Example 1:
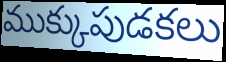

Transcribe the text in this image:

ముక్కుపుడకలు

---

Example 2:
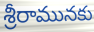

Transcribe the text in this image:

శ్రీరామునకు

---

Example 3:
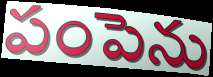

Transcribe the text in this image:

పంపెను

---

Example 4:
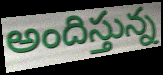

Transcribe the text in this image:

అందిస్తున్న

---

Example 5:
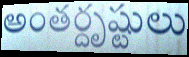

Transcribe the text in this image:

అంతర్దృష్టులు